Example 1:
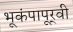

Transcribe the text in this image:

भूकंपापूर्वी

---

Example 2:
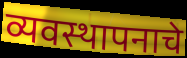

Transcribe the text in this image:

व्यवस्थापनाचे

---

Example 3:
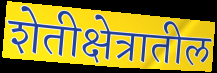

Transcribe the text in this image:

शेतीक्षेत्रातील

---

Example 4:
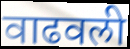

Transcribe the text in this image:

वाढवली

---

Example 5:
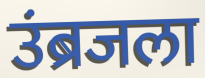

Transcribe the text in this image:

उंब्रजला